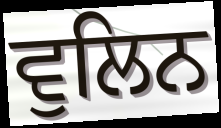
ਵੁਲਿਨ